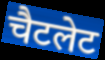
चैटलेट